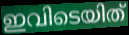
ഇവിടെയിത്